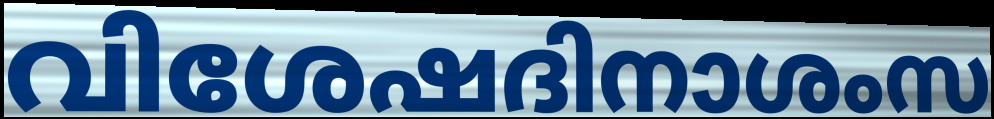
വിശേഷദിനാശംസ